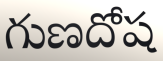
గుణదోష